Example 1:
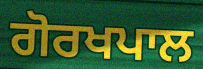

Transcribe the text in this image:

ਗੋਰਖਪਾਲ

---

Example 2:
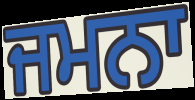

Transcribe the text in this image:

ਜਮਨਾ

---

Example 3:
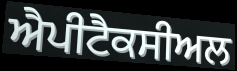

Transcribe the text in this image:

ਐਪੀਟੈਕਸੀਅਲ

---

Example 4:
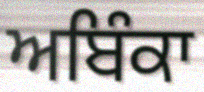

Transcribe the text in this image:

ਅਬਿੰਕਾ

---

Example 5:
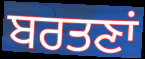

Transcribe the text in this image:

ਬਰਤਣਾਂ